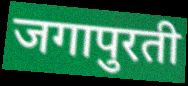
जगापुरती